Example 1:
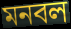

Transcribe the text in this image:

মনবল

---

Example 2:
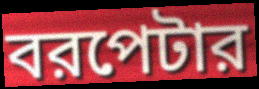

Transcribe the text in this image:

বরপেটার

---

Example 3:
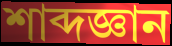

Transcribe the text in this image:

শাব্দজ্ঞান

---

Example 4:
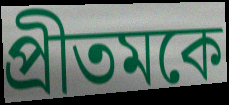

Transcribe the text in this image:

প্রীতমকে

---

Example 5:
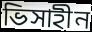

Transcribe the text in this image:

ভিসাহীন